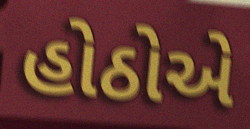
હોઠોએ